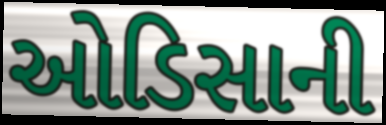
ઓડિસાની